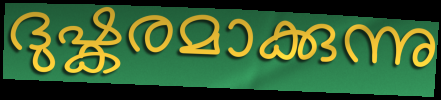
ദുഷ്കരമാക്കുന്നു